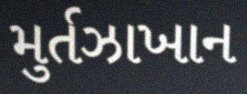
મુર્તઝાખાન